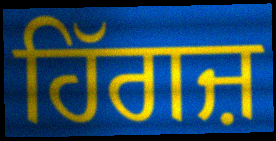
ਹਿੱਗਜ਼